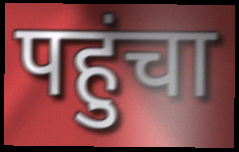
पहुंचा